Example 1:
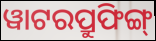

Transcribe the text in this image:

ୱାଟରପ୍ରୁଫିଙ୍ଗ୍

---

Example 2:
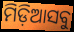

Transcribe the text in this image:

ମିଡ଼ିଆସବୁ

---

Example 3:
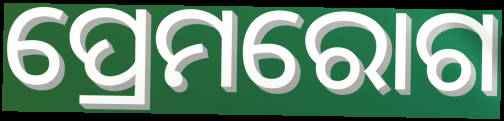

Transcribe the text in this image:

ପ୍ରେମରୋଗ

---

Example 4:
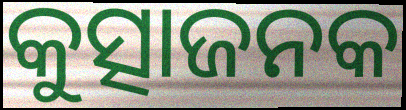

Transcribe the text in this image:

କୁତ୍ସାଜନକ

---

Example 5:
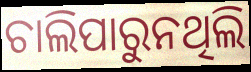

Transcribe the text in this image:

ଚାଲିପାରୁନଥିଲି